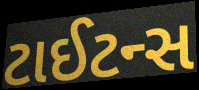
ટાઈટન્સ